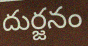
దుర్జనం